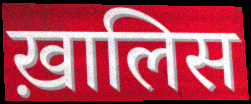
ख़ालिस